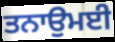
ਤਨਾਉਮਈ